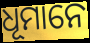
ଧୂମାନେ